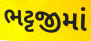
ભટ્ટજીમાં